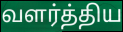
வளர்த்திய